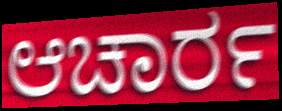
ಆಚಾರ್ರ